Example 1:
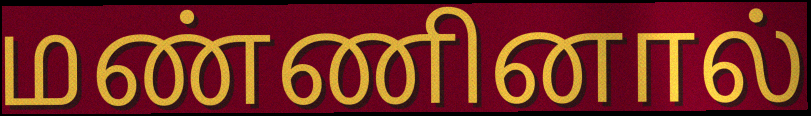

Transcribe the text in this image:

மண்ணினால்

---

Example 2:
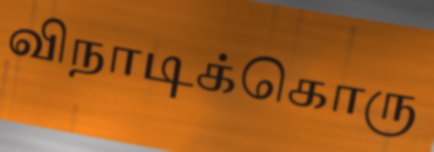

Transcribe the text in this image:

விநாடிக்கொரு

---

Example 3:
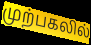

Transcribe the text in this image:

முற்பகலில்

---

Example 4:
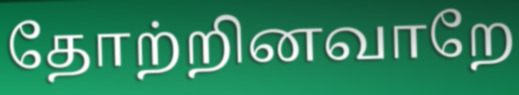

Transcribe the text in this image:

தோற்றினவாறே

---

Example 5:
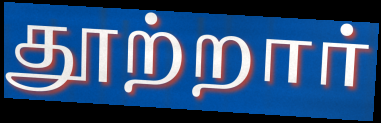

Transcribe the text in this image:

தூற்றார்